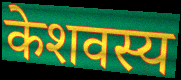
केशवस्य